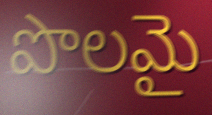
పొలమై